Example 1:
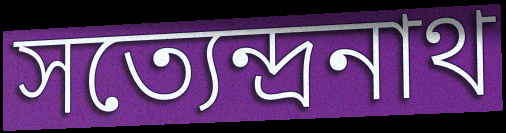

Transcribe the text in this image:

সত্যেন্দ্রনাথ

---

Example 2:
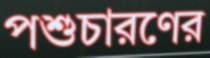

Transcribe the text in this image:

পশুচারণের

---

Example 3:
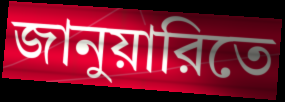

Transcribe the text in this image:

জানুয়ারিতে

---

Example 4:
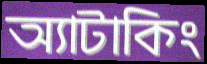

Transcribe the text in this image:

অ্যাটাকিং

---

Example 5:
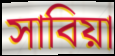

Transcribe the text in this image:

সাবিয়া